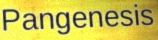
Pangenesis